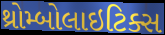
થ્રોમ્બોલાઇટિક્સ